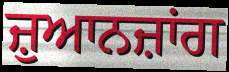
ਜ਼ੁਆਨਜ਼ਾਂਗ